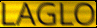
LAGLO